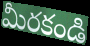
మీరకండి